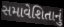
સમાવેશિતાનું